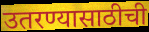
उतरण्यासाठीची